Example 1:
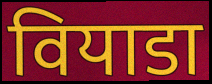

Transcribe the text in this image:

वियाडा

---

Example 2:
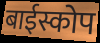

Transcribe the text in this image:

बाईस्कोप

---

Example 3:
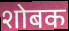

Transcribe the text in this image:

शोबक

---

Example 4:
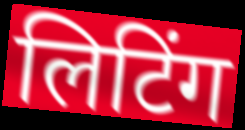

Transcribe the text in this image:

लिटिंग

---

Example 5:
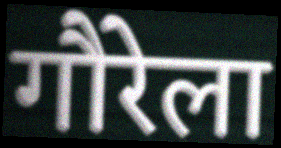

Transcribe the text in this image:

गौरेला